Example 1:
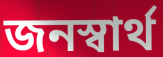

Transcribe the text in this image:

জনস্বার্থ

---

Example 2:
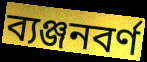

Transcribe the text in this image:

ব্যঞ্জনবর্ণ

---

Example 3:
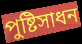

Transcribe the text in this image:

পুষ্টিসাধন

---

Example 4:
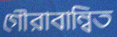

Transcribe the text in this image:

গৌরাবান্বিত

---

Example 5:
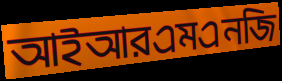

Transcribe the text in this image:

আইআরএমএনজি